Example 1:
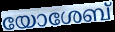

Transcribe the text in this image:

യോശേബ്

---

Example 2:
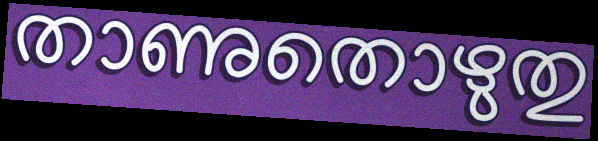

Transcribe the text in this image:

താണുതൊഴുതു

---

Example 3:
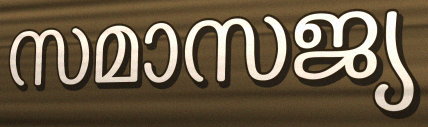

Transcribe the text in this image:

സമാസജ്യ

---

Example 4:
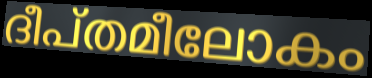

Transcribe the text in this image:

ദീപ്‌തമീലോകം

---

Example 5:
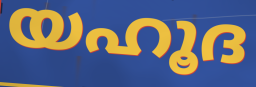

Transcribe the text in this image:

യഹൂദ